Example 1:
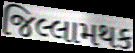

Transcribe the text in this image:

જિલ્લામથક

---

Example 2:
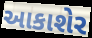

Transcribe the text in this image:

આકાશેર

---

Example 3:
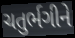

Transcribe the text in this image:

ચતુર્ભગીને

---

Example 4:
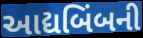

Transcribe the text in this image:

આદ્યબિંબની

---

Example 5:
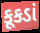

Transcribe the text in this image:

કૂકડાં